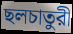
ছলচাতুরী